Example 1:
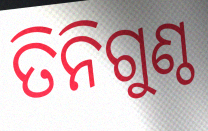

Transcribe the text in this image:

ତିନିଗୁଣ୍ଠ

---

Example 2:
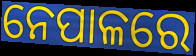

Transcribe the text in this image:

ନେପାଳରେ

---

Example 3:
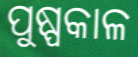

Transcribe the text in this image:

ପୁଷ୍ପକାଳ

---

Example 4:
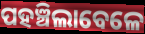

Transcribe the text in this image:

ପହଞ୍ଚିଲାବେଳେ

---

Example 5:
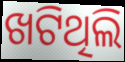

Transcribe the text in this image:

ଖଟିଥିଲି